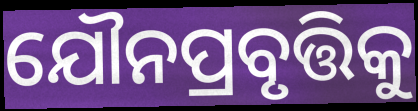
ଯୌନପ୍ରବୃତ୍ତିକୁ